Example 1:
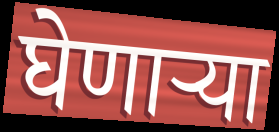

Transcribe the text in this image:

घेणाऱ्या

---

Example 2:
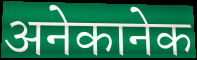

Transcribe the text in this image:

अनेकानेक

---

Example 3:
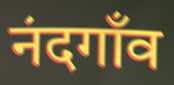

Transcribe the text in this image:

नंदगाँव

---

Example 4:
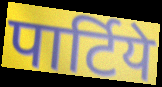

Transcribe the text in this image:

पार्टिये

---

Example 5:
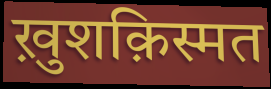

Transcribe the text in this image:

ख़ुशक़िस्मत